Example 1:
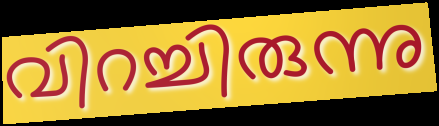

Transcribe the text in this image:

വിറച്ചിരുന്നു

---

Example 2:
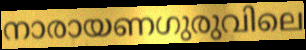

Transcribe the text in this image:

നാരായണഗുരുവിലെ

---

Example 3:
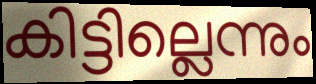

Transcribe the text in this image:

കിട്ടില്ലെന്നും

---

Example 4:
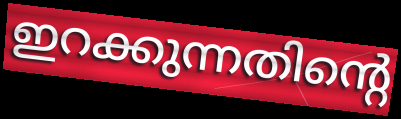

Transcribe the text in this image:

ഇറക്കുന്നതിന്റെ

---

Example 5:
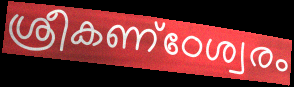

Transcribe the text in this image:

ശ്രീകണ്‌ഠേശ്വരം